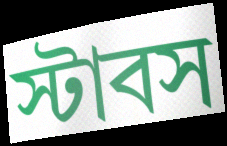
স্টাবস